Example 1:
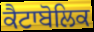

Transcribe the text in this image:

ਕੈਟਾਬੋਲਿਕ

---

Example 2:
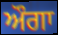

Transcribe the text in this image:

ਔਗਾ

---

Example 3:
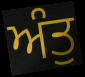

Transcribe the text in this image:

ਅੰਤੁ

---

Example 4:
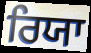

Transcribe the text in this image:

ਰਿਯਾ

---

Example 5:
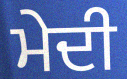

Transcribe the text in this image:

ਮੇਦੀ